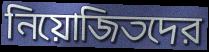
নিয়োজিতদের